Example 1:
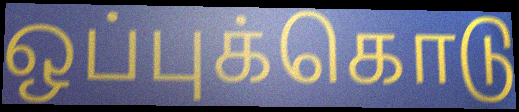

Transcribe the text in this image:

ஒப்புக்கொடு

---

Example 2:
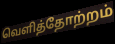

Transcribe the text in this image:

வெளித்தோற்றம்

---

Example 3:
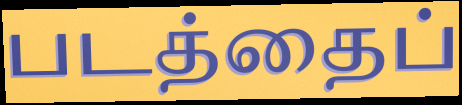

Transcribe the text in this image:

படத்தைப்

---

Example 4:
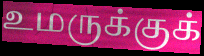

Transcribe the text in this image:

உமருக்குக்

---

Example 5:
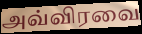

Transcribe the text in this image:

அவ்விரவை